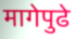
मागेपुढे